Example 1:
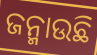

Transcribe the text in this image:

ଜନ୍ମାଉଛି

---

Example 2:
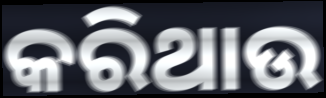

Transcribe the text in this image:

କରିଥାଉ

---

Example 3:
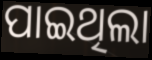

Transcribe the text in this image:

ପାଇଥିଲା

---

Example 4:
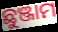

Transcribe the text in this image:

ଛୁଞ୍ଜାମ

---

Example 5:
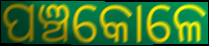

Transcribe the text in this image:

ପଞ୍ଚକୋଳେ